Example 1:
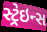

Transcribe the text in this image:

સ્ટ્રેઇન્સ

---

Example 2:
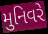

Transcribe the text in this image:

મુનિવરે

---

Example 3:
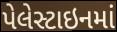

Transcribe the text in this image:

પેલેસ્ટાઇનમાં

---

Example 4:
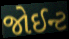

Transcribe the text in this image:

જોઈન્ટ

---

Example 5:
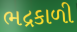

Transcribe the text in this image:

ભદ્રકાળી